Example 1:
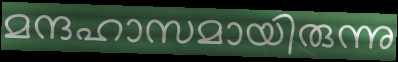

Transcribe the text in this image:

മന്ദഹാസമായിരുന്നു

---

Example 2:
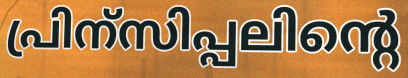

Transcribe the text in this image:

പ്രിന്സിപ്പലിന്റെ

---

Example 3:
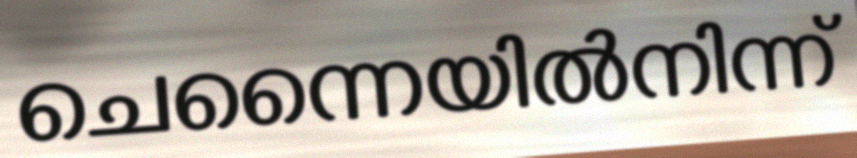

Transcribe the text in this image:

ചെന്നൈയിൽനിന്ന്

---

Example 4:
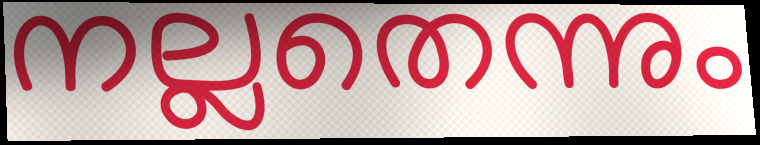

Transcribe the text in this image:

നല്ലതെന്നും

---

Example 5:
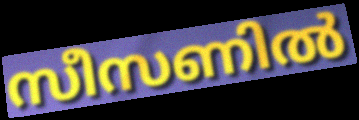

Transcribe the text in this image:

സീസണിൽ